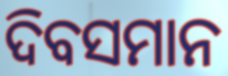
ଦିବସମାନ